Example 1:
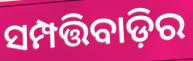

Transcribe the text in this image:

ସମ୍ପତ୍ତିବାଡ଼ିର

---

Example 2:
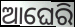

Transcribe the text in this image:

ଆଘେରି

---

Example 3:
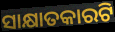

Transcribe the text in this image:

ସାକ୍ଷାତକାରଟି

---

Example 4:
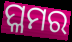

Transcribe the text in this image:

ପ୍ଳମର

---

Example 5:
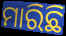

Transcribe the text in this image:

ମାରିଛି